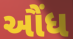
ઔંધ